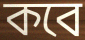
কবে